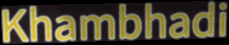
Khambhadi